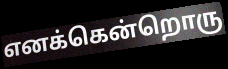
எனக்கென்றொரு